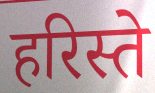
हरिस्ते